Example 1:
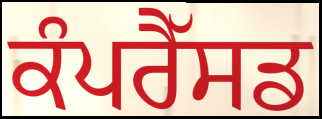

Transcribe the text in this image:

ਕੰਪਰੈੱਸਡ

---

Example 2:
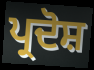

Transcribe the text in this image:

ਪ੍ਰਦੋਸ਼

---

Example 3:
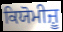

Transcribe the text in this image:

ਕਿਯੋਮੀਜ਼ੂ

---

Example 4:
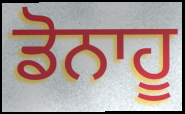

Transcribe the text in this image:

ਡੋਨਾਹੂ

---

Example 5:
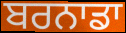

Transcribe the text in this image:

ਬਰਨਾਡਾ